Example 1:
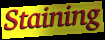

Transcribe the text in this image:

Staining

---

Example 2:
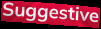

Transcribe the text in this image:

Suggestive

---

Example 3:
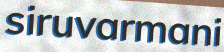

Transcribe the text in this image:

siruvarmani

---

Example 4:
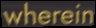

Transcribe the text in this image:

wherein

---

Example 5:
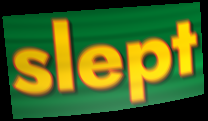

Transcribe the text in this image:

slept